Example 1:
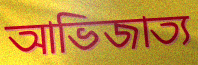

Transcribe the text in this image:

আভিজাত্য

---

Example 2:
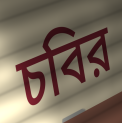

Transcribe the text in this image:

চবির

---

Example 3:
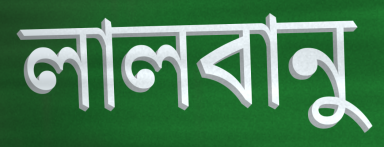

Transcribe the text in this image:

লালবানু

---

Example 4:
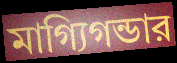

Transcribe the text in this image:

মাগ্যিগন্ডার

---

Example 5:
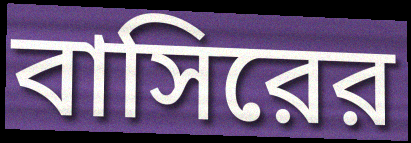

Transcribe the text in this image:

বাসিরের